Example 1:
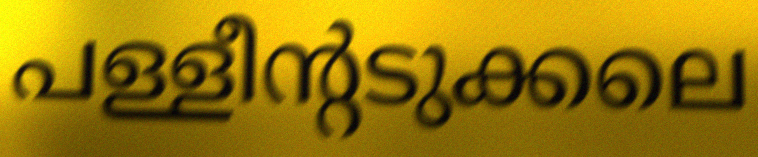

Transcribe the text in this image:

പള്ളീന്റടുക്കലെ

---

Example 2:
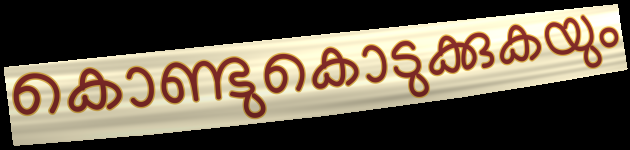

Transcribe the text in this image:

കൊണ്ടുകൊടുക്കുകയും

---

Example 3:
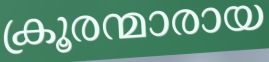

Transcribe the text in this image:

ക്രൂരന്മാരായ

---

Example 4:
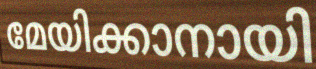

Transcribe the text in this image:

മേയിക്കാനായി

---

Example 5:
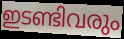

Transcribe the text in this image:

ഇടണ്ടിവരും